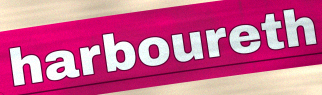
harboureth